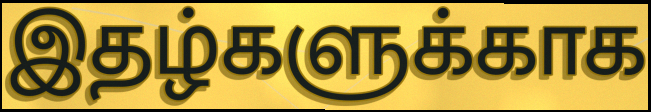
இதழ்களுக்காக